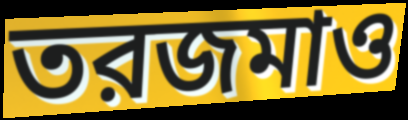
তরজমাও